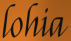
lohia